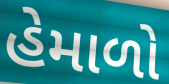
હેમાળો